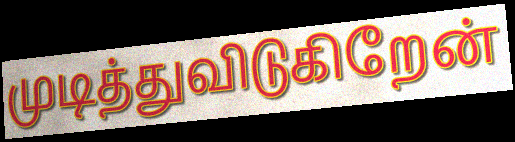
முடித்துவிடுகிறேன்